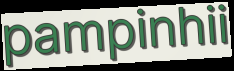
pampinhii